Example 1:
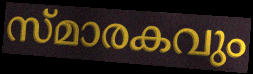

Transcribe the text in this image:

സ്മാരകവും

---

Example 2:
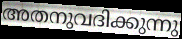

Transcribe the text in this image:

അതനുവദിക്കുന്നു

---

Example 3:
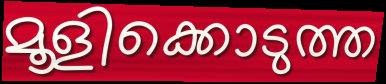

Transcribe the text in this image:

മൂളിക്കൊടുത്ത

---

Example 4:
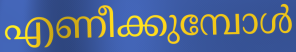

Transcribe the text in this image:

എണീക്കുമ്പോൾ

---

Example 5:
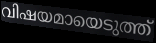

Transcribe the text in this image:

വിഷയമായെടുത്ത്